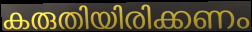
കരുതിയിരിക്കണം